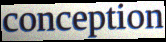
conception